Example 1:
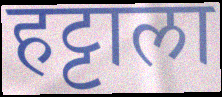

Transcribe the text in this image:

हट्टाला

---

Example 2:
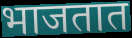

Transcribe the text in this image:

भाजतात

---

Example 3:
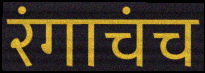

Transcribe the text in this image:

रंगाचंच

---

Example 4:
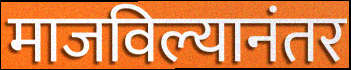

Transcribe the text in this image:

माजविल्यानंतर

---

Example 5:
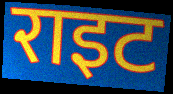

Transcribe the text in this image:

राइट